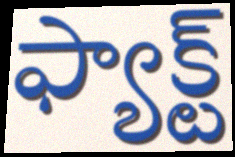
ఫ్యాక్ట్